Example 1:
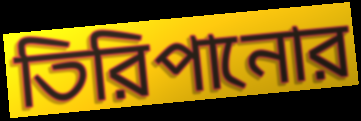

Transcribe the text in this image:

তিরিপানোর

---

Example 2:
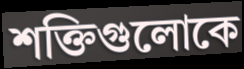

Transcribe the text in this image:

শক্তিগুলোকে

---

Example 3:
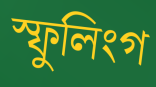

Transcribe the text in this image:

স্ফুলিংগ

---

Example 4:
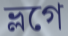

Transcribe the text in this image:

ভ্লগে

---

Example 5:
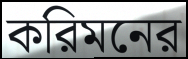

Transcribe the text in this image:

করিমনের